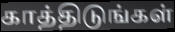
காத்திடுங்கள்